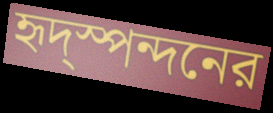
হৃদ্স্পন্দনের